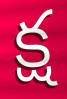
క్ష